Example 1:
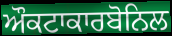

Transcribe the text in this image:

ਔਕਟਾਕਾਰਬੋਨਿਲ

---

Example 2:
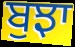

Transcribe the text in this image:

ਬੁਝਾ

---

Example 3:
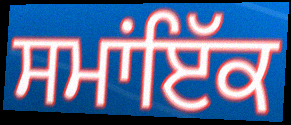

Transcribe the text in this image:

ਸਮਾਂਇੱਕ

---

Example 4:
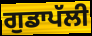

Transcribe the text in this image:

ਗੁਡਾਪੱਲੀ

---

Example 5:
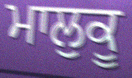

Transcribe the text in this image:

ਮਾਲੁਕੂ